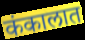
कंकालात